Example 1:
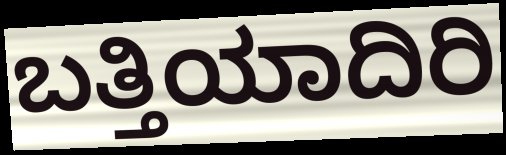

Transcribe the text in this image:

ಬತ್ತಿಯಾದಿರಿ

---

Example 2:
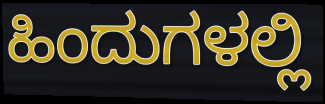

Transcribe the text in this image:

ಹಿಂದುಗಳಲ್ಲಿ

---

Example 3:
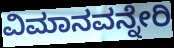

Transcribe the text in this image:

ವಿಮಾನವನ್ನೇರಿ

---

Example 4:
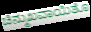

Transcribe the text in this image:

ಚಿನ್ಮುಖವಾಯಿತೊ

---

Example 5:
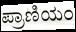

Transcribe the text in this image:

ಪ್ರಾಣಿಯಂ